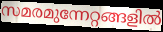
സമരമുന്നേറ്റങ്ങളിൽ